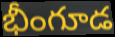
భీంగూడ